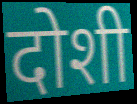
दोशी